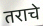
तराचे